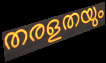
തരളതയും